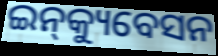
ଇନ୍‌କ୍ୟୁବେସନ